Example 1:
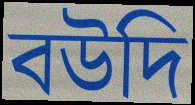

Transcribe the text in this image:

বউদি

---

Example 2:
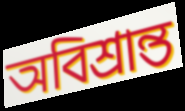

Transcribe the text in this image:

অবিশ্রান্ত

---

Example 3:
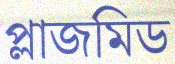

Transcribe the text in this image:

প্লাজমিড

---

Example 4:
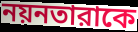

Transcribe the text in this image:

নয়নতারাকে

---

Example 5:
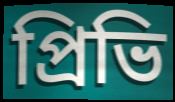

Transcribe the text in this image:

প্রিভি